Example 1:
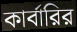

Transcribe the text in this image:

কার্বারির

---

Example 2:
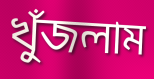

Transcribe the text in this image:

খুঁজলাম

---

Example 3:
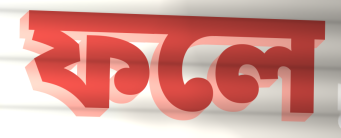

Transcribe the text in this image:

ফলে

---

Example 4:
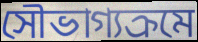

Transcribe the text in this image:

সৌভাগ্যক্রমে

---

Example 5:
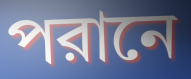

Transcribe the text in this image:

পরানে